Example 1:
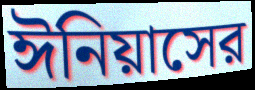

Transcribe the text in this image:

ঈনিয়াসের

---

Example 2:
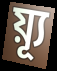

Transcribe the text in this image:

য়্যূ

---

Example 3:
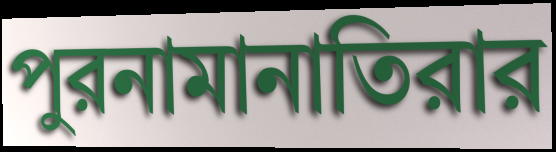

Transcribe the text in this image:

পুরনামানাতিরার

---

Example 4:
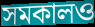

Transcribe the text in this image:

সমকালও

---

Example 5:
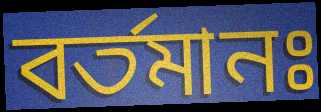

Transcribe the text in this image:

বর্তমানঃ